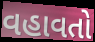
વહાવતો